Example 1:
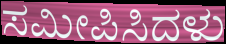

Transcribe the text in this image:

ಸಮೀಪಿಸಿದಳು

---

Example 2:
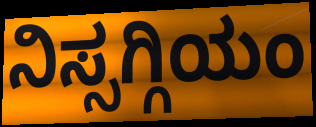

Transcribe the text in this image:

ನಿಸ್ಸಗ್ಗಿಯಂ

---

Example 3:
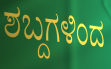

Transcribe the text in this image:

ಶಬ್ದಗಳಿಂದ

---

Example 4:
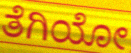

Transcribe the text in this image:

ತೆಗಿಯೋ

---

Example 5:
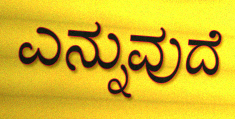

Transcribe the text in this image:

ಎನ್ನುವುದೆ